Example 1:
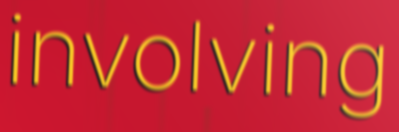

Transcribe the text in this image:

involving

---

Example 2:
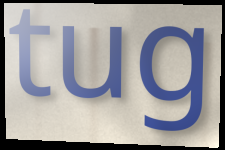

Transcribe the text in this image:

tug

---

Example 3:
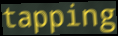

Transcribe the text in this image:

tapping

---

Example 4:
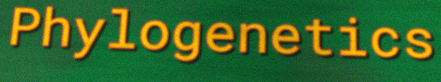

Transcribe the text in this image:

Phylogenetics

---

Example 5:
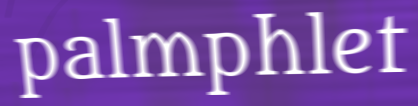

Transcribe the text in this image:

palmphlet